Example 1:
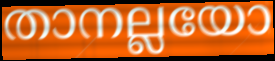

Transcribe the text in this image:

താനല്ലയോ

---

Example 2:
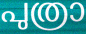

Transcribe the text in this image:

പുത്രാ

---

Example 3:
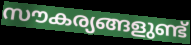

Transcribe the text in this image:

സൗകര്യങ്ങളുണ്ട്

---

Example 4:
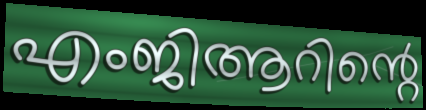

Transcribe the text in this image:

എംജിആറിന്റെ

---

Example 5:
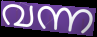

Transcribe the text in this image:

വന്ന